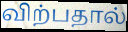
விற்பதால்